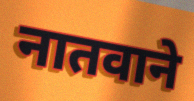
नातवाने